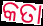
କତା